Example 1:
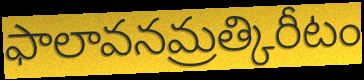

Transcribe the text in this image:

ఫాలావనమ్రత్కిరీటం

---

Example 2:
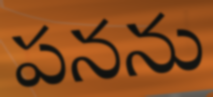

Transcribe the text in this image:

పనను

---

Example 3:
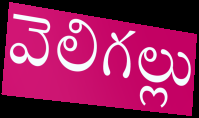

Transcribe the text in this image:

వెలిగల్లు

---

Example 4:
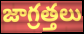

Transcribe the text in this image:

జాగ్రత్తలు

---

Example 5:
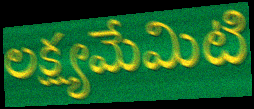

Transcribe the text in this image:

లక్ష్యమేమిటి